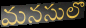
మనసులొ